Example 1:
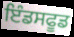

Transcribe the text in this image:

ਇੰਡਸਫੂਡ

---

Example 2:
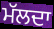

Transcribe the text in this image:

ਮੱਲਦਾ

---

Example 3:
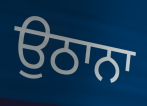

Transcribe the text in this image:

ਉਠਾਨਾ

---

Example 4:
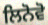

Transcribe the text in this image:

ਲਿਨੋਵੋ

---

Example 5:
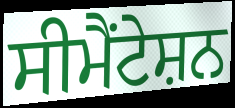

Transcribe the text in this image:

ਸੀਮੈਂਟੇਸ਼ਨ